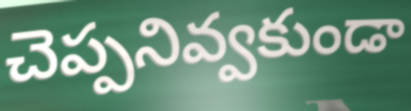
చెప్పనివ్వకుండా